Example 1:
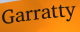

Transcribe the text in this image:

Garratty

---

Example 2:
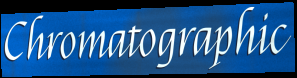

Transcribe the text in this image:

Chromatographic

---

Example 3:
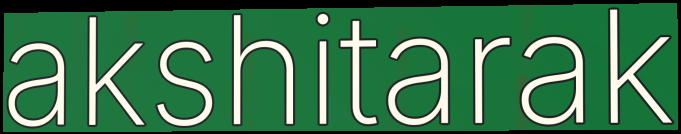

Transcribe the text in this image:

akshitarak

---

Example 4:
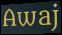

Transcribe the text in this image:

Awaj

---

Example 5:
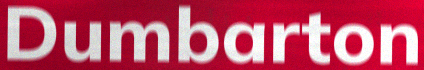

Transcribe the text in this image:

Dumbarton